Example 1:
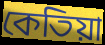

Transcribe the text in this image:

কেতিয়া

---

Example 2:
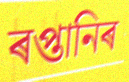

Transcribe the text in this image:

ৰপ্তানিৰ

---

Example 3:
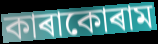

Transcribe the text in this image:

কাৰাকোৰাম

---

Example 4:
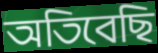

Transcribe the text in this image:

অতিবেছি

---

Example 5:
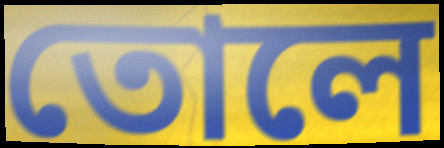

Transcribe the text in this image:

তোলে